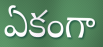
ఏకంగా